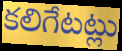
కలిగేటట్లు